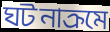
ঘটনাক্রমে